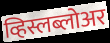
व्हिस्लब्लोअर